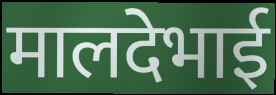
मालदेभाई